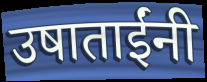
उषाताईंनी